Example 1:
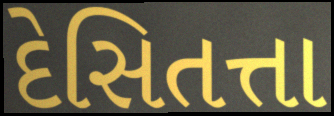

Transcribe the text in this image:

દેસિતત્તા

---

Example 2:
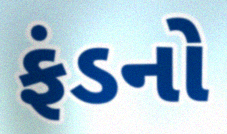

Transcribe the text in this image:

ફંડનો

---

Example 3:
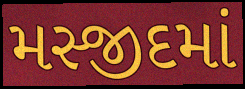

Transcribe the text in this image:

મસ્જીદમાં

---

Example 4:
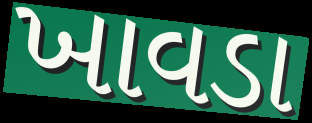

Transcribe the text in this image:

ખાવડા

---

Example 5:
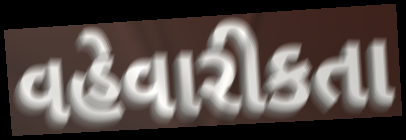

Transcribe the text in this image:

વહેવારીકતા